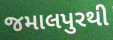
જમાલપુરથી